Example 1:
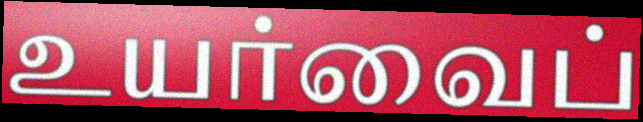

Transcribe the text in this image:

உயர்வைப்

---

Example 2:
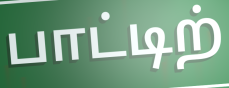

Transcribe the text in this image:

பாட்டிற்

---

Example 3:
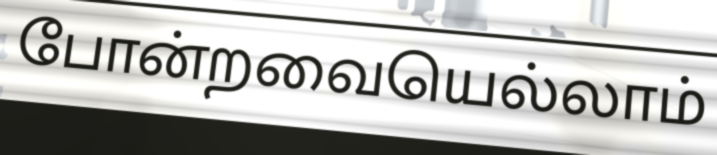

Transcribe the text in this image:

போன்றவையெல்லாம்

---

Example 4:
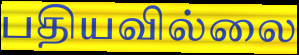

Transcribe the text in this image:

பதியவில்லை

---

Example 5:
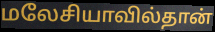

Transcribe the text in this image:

மலேசியாவில்தான்